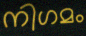
നിഗമം